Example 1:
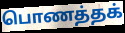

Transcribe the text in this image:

பொணத்தக்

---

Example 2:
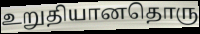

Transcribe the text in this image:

உறுதியானதொரு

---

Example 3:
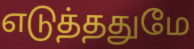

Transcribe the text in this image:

எடுத்ததுமே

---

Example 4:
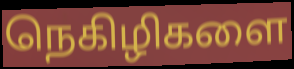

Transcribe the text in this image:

நெகிழிகளை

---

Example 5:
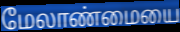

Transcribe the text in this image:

மேலாண்மையை